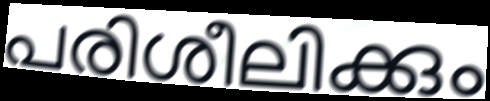
പരിശീലിക്കും